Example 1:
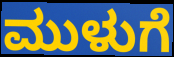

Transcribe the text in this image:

ಮುಳುಗೆ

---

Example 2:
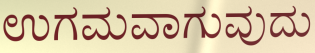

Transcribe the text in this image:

ಉಗಮವಾಗುವುದು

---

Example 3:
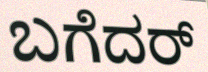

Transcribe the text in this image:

ಬಗೆದರ್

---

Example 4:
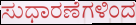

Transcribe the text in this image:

ಸುಧಾರಣೆಗಳಿಂದ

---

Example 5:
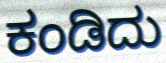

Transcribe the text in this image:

ಕಂಡಿದು